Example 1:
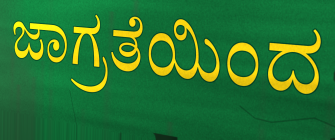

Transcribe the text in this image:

ಜಾಗ್ರತೆಯಿಂದ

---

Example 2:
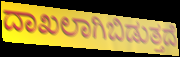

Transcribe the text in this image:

ದಾಖಲಾಗಿಬಿಡುತ್ತದೆ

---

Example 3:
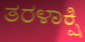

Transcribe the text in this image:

ತರಳಾಕ್ಷಿ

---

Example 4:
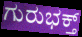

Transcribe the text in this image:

ಗುರುಭಕ್ತ್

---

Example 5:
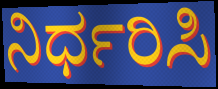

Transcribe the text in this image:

ನಿರ್ಧರಿಸಿ